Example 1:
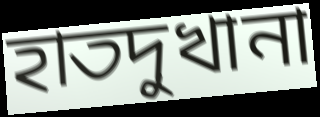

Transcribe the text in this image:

হাতদুখানা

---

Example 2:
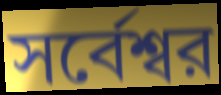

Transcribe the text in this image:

সর্বেশ্বর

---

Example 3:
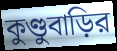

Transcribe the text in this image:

কুণ্ডুবাড়ির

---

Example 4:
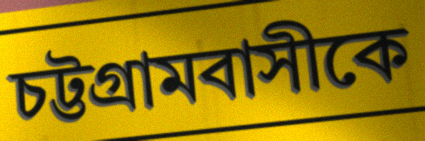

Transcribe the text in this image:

চট্টগ্রামবাসীকে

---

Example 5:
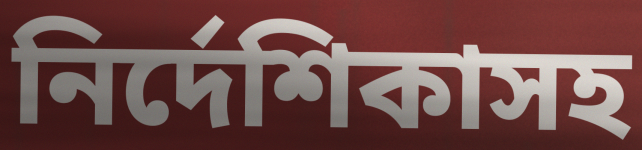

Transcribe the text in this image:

নির্দেশিকাসহ